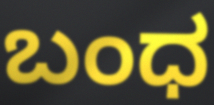
ಬಂಧ